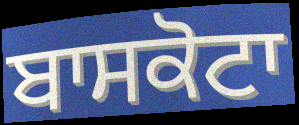
ਬਾਸਕੋਟਾ